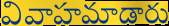
వివాహమాడారు